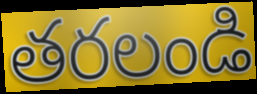
తరలండి